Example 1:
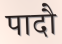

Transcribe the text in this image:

पादौ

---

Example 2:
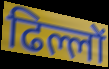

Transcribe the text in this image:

ढिल्लों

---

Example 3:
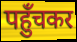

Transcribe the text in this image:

पहुँचकर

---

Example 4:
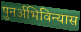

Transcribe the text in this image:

पुनर्अभिविन्यास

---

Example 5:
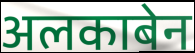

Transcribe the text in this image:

अलकाबेन